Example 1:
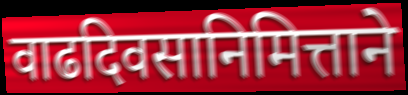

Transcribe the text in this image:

वाढदिवसानिमित्ताने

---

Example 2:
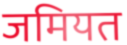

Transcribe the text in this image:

जमियत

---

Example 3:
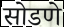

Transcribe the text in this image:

सोडणे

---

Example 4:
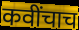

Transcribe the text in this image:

कवींचाच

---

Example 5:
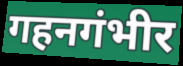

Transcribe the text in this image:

गहनगंभीर